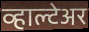
व्हाल्टेअर